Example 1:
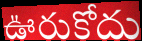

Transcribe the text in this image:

ఊరుకోదు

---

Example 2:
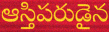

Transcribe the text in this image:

ఆస్తిపరుడైన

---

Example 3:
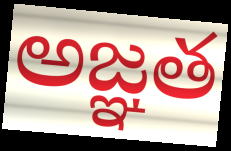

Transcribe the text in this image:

అజ్ఞత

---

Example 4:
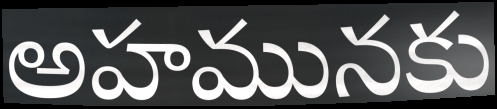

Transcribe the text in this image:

అహమునకు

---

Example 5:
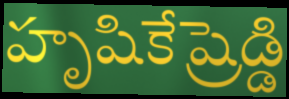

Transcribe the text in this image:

హృషికేష్రెడ్డి